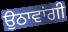
ਉਠਾਵਾਂਗੀ